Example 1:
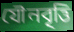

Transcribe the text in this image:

যৌনবৃত্তি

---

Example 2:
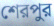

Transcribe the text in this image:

শেরপুর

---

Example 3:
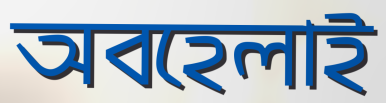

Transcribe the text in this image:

অবহেলাই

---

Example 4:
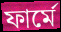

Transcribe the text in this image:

ফার্মে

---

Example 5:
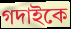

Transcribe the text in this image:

গদাইকে